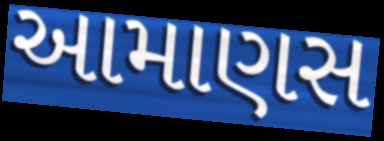
આમાણસ